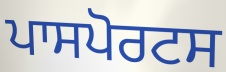
ਪਾਸਪੋਰਟਸ